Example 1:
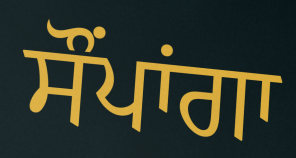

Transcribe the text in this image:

ਸੌਂਪਾਂਗਾ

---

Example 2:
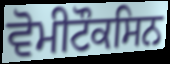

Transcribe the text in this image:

ਵੋਮੀਟੌਕਸਿਨ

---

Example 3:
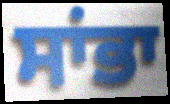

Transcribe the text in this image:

ਸਾਂਭਾ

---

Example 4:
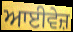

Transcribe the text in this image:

ਆਈਵੇਜ਼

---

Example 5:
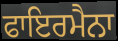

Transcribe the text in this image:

ਫਾਇਰਮੈਨਾ